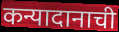
कन्यादानाची